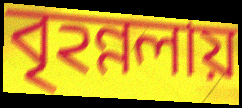
বৃহন্নলায়